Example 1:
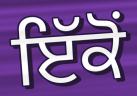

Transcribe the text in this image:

ਇੱਕੋਂ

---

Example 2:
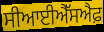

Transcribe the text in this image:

ਸੀਆਈਐੱਸਐਫ਼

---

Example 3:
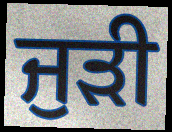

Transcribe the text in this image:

ਜੁੜੀ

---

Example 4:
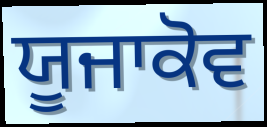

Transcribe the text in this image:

ਯੂਜਾਕੋਵ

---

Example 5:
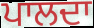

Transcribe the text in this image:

ਪਾਲਦਾ